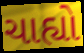
ચાહ્યો